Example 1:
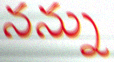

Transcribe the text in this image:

నన్ను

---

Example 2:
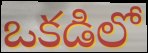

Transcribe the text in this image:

ఒకడిలో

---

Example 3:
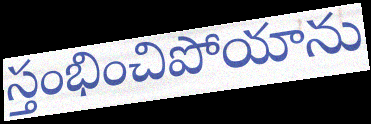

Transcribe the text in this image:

స్తంభించిపోయాను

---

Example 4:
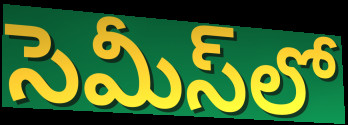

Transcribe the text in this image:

సెమీస్‌లో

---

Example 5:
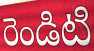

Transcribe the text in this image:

రెండిటి